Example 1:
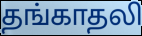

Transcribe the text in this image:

தங்காதலி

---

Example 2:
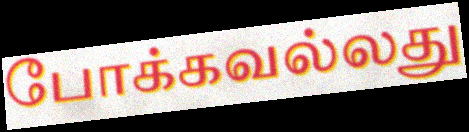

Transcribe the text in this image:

போக்கவல்லது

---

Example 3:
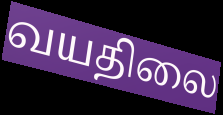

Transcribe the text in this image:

வயதிலை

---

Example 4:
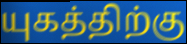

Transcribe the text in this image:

யுகத்திற்கு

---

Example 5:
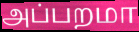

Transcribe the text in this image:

அப்பறமா